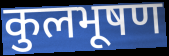
कुलभूषण